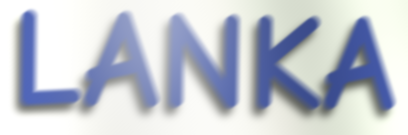
LANKA